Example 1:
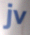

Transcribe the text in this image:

jv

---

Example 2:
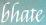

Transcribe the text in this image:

bhate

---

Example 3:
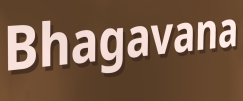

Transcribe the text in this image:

Bhagavana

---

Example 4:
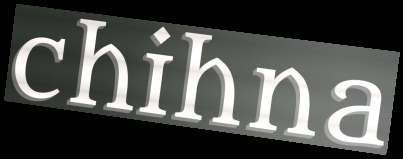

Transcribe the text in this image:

chihna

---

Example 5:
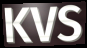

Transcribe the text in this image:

KVS